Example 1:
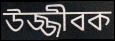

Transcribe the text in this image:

উজ্জীবক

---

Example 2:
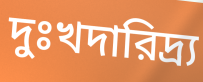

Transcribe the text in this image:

দুঃখদারিদ্র্য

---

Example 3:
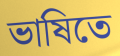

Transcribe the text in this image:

ভাষিতে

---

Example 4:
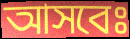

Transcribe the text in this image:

আসবেঃ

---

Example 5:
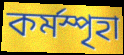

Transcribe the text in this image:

কর্মস্পৃহা